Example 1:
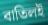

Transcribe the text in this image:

বাতিলই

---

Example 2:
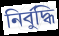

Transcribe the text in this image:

নির্বুদ্ধি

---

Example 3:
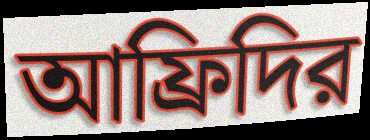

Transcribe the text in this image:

আফ্রিদির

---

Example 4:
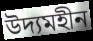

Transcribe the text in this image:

উদ্যমহীন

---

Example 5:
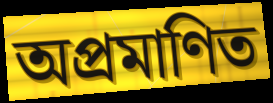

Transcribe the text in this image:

অপ্রমাণিত